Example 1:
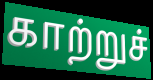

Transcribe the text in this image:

காற்றுச்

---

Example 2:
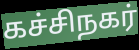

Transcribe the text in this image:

கச்சிநகர்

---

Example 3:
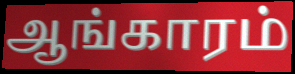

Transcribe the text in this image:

ஆங்காரம்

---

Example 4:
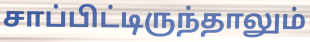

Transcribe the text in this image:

சாப்பிட்டிருந்தாலும்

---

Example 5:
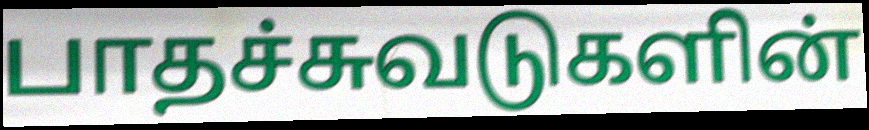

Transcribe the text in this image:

பாதச்சுவடுகளின்